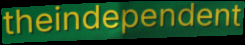
theindependent